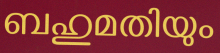
ബഹുമതിയും